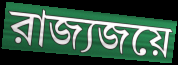
রাজ্যজয়ে